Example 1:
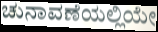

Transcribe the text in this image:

ಚುನಾವಣೆಯಲ್ಲಿಯೇ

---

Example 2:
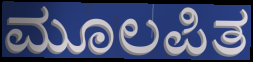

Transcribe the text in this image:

ಮೂಲಪಿತ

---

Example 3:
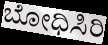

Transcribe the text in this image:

ಬೋಧಿಸಿರಿ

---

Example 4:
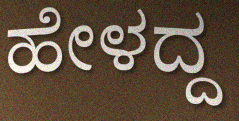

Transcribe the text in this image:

ಹೇಳದ್ದ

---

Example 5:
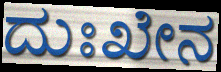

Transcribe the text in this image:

ದುಃಖೇನ